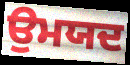
ਉਮਯਦ